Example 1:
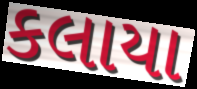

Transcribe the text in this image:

કલાયા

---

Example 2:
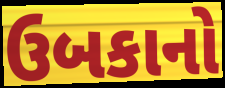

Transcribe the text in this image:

ઉબકાનો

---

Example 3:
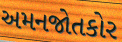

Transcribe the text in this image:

અમનજોતકોર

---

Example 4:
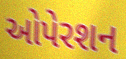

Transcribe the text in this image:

ઓપેરશન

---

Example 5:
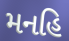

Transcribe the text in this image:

મનહિ